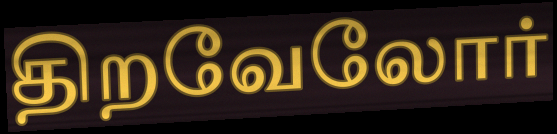
திறவேலோர்